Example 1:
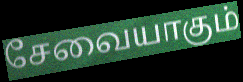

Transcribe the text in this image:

சேவையாகும்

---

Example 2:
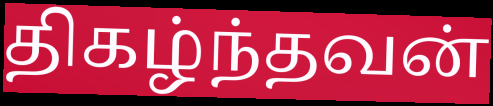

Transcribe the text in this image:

திகழ்ந்தவன்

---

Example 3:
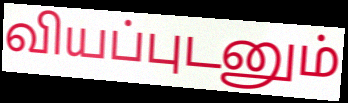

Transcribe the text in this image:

வியப்புடனும்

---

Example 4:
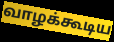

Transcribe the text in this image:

வாழக்கூடிய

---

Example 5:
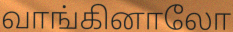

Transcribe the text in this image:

வாங்கினாலோ